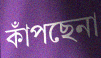
কাঁপছেনা